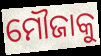
ମୌଜାକୁ